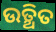
ଉତ୍ଥିତ